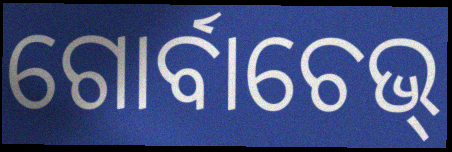
ଗୋର୍ବାଚେଭ୍